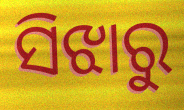
ସିଝାରୁ